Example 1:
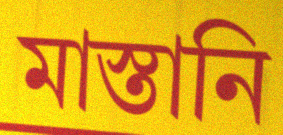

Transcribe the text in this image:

মাস্তানি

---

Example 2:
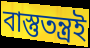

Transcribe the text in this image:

বাস্তুতন্ত্রই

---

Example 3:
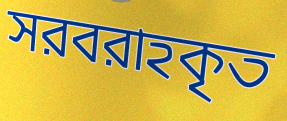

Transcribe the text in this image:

সরবরাহকৃত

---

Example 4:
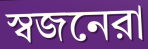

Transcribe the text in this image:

স্বজনেরা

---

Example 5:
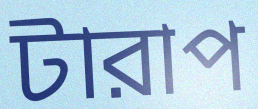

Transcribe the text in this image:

টারাপ